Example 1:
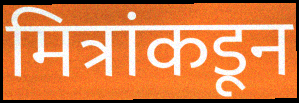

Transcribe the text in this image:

मित्रांकडून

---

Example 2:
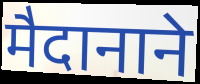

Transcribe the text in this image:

मैदानाने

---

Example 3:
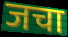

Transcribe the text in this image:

जचा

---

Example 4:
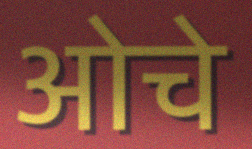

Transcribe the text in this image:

ओचे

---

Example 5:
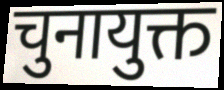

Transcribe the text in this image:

चुनायुक्त